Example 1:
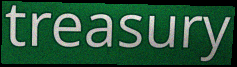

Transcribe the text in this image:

treasury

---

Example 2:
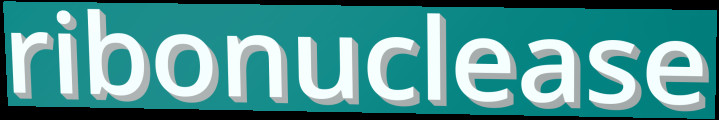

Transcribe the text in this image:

ribonuclease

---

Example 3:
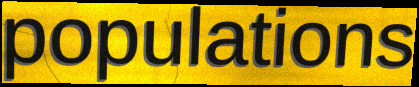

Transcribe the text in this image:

populations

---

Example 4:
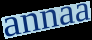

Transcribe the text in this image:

annaa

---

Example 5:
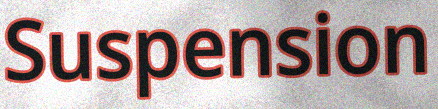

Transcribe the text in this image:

Suspension